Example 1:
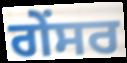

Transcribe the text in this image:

ਗੇਂਸਰ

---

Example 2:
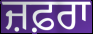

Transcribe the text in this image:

ਜ਼ਫ਼ਰਾ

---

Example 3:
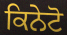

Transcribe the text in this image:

ਕਿਨੇਟੋ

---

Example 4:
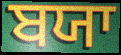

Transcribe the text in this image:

ਬਯਾ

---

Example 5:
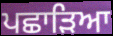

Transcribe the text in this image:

ਪਛਾੜਿਆ